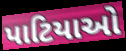
પાટિયાઓ